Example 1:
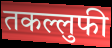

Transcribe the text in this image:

तकल्लुफी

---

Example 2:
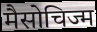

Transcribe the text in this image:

मैसोचिज्म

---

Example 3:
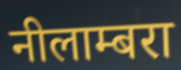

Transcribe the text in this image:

नीलाम्बरा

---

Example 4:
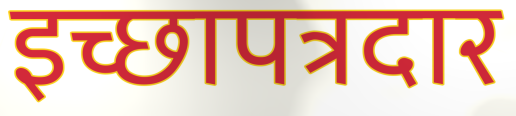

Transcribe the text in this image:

इच्छापत्रदार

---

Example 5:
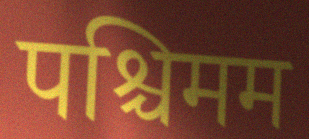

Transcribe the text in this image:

पश्चिमम